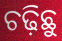
ଚଢ଼ିଛୁ